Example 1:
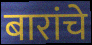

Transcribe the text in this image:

बारांचे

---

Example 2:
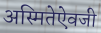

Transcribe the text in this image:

अस्मितेऐवजी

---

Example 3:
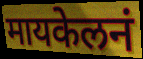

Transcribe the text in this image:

मायकेलनं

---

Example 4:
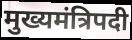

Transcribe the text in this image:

मुख्यमंत्रिपदी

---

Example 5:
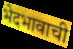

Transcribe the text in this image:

भेदभावाची